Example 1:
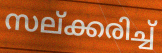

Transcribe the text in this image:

സല്ക്കരിച്ച്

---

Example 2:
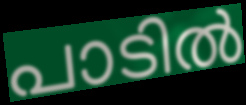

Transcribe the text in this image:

പാടിൽ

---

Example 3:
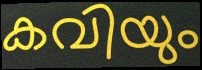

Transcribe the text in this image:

കവിയും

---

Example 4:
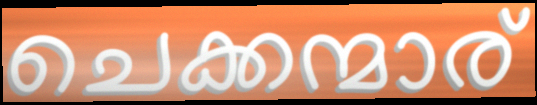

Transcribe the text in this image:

ചെക്കന്മാര്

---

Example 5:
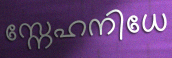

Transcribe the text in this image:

സ്നേഹനിധേ